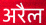
अरैल